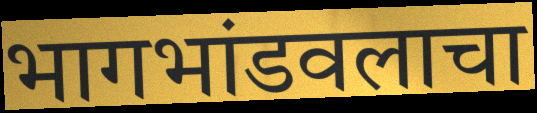
भागभांडवलाचा